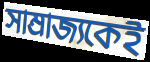
সাম্রাজ্যকেই